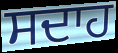
ਸਦਾਹ